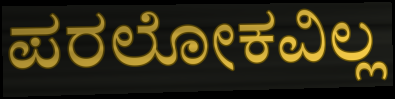
ಪರಲೋಕವಿಲ್ಲ